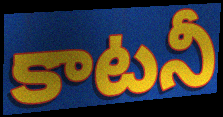
కాటనీ